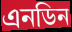
এনডিন